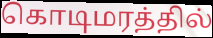
கொடிமரத்தில்